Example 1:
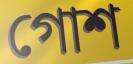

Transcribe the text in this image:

গোশ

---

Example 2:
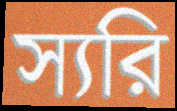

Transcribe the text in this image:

স্যরি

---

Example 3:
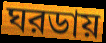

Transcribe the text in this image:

ঘরডায়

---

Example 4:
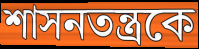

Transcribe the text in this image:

শাসনতন্ত্রকে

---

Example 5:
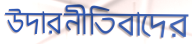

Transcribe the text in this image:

উদারনীতিবাদের